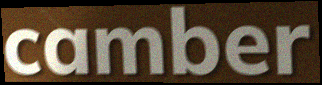
camber